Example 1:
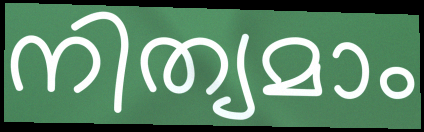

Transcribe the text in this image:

നിത്യമാം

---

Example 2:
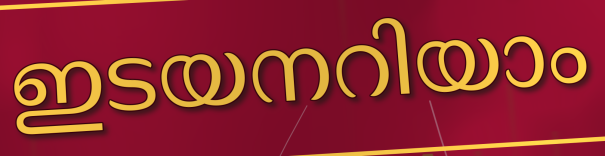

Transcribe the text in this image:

ഇടയനറിയാം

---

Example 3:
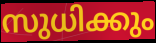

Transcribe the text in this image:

സുധിക്കും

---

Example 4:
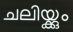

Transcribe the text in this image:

ചലിയ്ക്കും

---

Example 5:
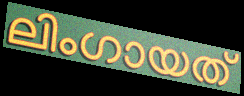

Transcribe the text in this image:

ലിംഗായത്